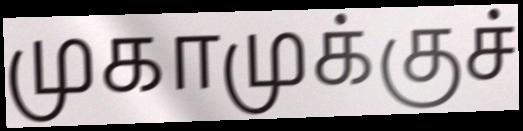
முகாமுக்குச்